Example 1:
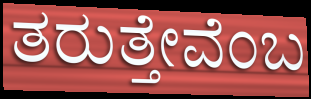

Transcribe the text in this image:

ತರುತ್ತೇವೆಂಬ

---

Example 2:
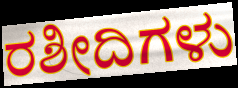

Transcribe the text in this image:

ರಶೀದಿಗಳು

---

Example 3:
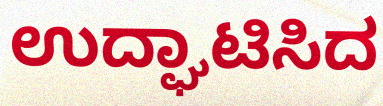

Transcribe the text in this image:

ಉದ್ಘಾಟಿಸಿದ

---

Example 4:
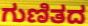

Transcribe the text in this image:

ಗುಣಿತದ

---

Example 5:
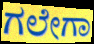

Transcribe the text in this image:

ಗಲೇಗಾ